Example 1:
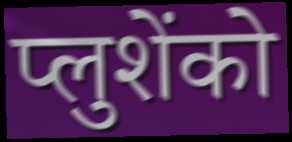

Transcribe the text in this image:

प्लुशेंको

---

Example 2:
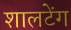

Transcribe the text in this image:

शालटेंग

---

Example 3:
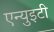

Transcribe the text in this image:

एन्युइटी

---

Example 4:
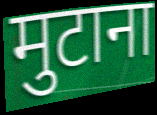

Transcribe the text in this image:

मुटाना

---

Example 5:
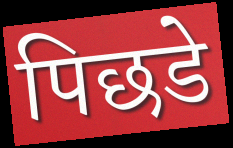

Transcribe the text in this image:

पिछडे